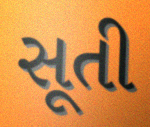
સૂતી